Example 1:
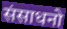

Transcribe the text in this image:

संसाधनो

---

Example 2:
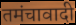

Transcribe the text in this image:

तमंचावादी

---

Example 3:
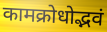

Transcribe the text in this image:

कामक्रोधोद्भवं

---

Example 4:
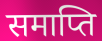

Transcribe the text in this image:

समाप्ति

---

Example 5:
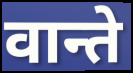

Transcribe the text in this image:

वान्ते